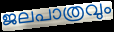
ജലപാത്രവും